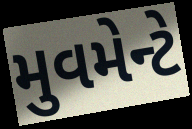
મુવમેન્ટે